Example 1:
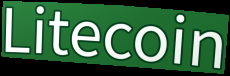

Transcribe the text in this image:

Litecoin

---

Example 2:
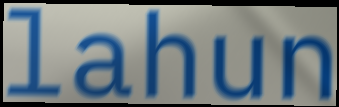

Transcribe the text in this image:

lahun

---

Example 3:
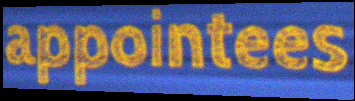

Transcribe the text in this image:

appointees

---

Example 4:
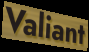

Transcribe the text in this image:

Valiant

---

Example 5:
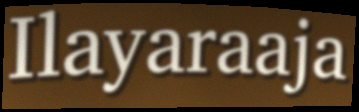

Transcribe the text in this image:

Ilayaraaja